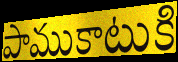
పాముకాటుకి